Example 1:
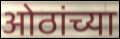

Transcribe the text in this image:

ओठांच्या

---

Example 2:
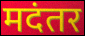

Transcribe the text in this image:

मदंतर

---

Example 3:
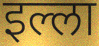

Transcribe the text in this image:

इल्ला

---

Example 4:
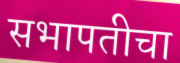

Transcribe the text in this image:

सभापतीचा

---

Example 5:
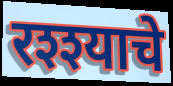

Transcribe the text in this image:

रश्श्याचे